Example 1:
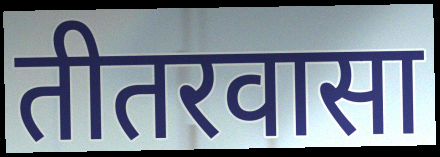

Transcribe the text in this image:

तीतरवासा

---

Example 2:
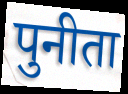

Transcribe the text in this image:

पुनीता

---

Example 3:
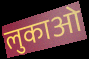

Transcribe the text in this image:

लुकाओ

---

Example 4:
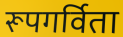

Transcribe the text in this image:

रूपगर्विता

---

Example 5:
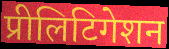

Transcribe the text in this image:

प्रीलिटिगेशन